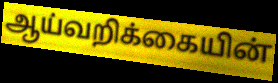
ஆய்வறிக்கையின்